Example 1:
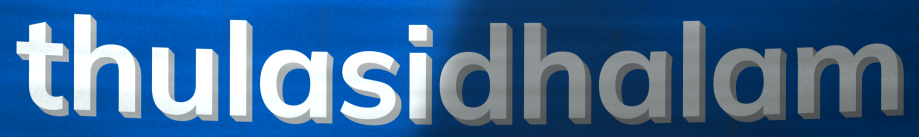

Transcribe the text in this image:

thulasidhalam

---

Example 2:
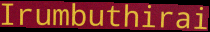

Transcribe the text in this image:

Irumbuthirai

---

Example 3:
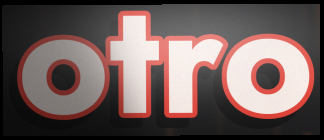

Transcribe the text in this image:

otro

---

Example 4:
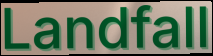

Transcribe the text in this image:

Landfall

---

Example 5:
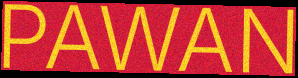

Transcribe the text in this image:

PAWAN